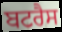
ਬਟਰੈਸ